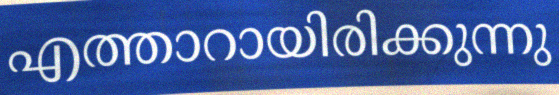
എത്താറായിരിക്കുന്നു